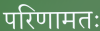
परिणामतः